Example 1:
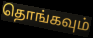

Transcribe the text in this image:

தொங்கவும்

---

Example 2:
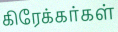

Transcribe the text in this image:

கிரேக்கர்கள்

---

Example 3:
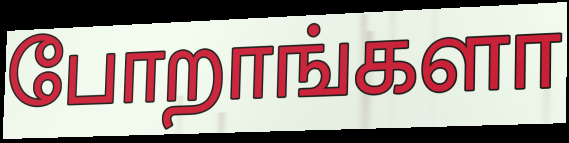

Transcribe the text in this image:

போறாங்களா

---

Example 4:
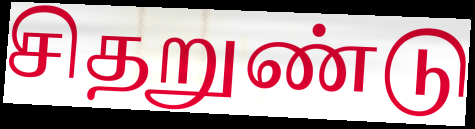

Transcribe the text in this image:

சிதறுண்டு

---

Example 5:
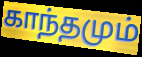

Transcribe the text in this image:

காந்தமும்